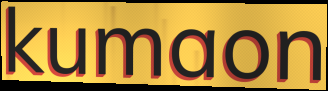
kumaon